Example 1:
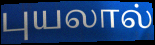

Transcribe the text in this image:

புயலால்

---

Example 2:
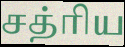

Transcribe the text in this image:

சத்ரிய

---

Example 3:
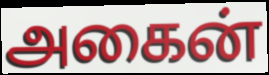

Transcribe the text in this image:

அகைன்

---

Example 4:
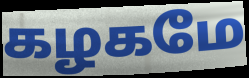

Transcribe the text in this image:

கழகமே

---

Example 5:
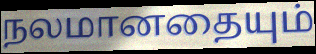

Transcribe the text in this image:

நலமானதையும்